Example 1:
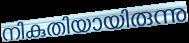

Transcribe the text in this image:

നികുതിയായിരുന്നു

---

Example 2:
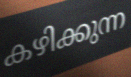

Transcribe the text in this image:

കഴിക്കുന്ന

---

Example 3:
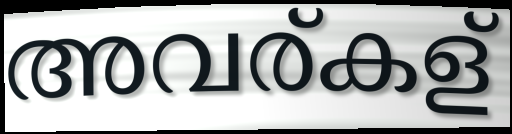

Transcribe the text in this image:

അവര്കള്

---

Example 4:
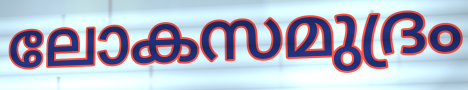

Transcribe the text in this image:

ലോകസമുദ്രം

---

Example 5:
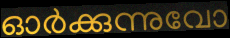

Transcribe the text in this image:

ഓർക്കുന്നുവോ